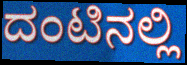
ದಂಟಿನಲ್ಲಿ